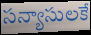
సన్యాసులకే